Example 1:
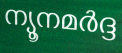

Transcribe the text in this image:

ന്യൂനമർദ്ദ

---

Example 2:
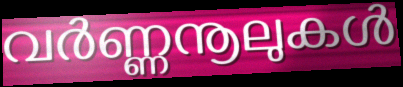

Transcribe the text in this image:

വർണ്ണനൂലുകൾ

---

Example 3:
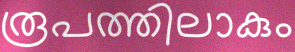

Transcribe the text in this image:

രൂപത്തിലാകും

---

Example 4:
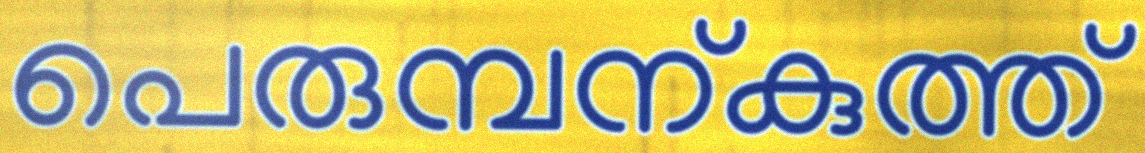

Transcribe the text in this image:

പെരുമ്പന്കുത്ത്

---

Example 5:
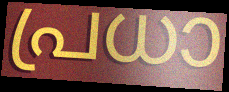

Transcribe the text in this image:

പ്രധാ